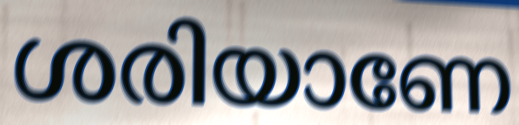
ശരിയാണേ